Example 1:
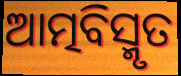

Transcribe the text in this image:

ଆତ୍ମବିସ୍ମୃତ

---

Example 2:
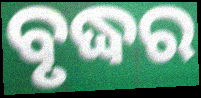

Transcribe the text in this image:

ବୃଦ୍ଧର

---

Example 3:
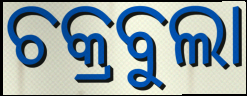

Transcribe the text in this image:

ଚକ୍ରବୁଲା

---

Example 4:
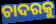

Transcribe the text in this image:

ଚାଦରକୁ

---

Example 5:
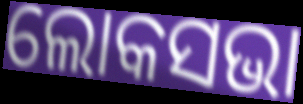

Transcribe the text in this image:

ଲୋକସଭା